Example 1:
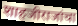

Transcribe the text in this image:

शाहजीराजांचा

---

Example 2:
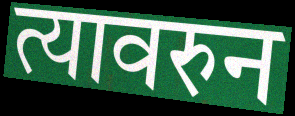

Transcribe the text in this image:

त्यावरुन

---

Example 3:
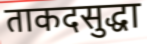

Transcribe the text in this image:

ताकदसुद्धा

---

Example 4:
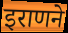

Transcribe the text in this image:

इराणने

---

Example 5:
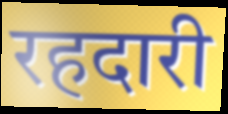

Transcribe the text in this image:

रहदारी